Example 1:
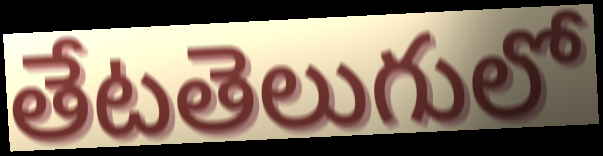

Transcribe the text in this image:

తేటతెలుగులో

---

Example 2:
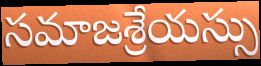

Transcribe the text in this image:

సమాజశ్రేయస్సు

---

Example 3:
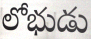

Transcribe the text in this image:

లోభుడు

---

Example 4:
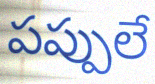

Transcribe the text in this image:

పప్పులే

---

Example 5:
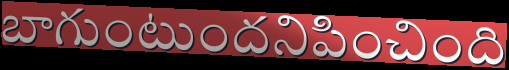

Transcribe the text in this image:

బాగుంటుందనిపించింది